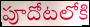
పూదోటలోకి